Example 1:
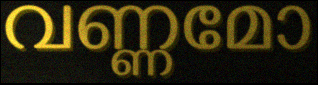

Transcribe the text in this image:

വണ്ണമോ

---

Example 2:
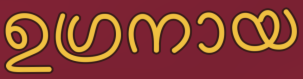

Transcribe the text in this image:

ഉഗ്രനായ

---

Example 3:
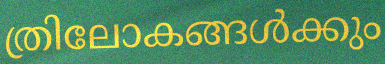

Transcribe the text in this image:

ത്രിലോകങ്ങൾക്കും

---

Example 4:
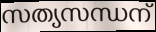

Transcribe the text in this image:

സത്യസന്ധന്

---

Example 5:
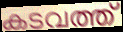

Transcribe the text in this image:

കടവത്ത്